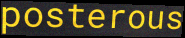
posterous